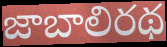
జాబాలిరథ